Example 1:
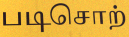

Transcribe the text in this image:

படிசொற்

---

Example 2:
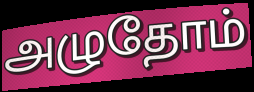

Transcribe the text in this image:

அழுதோம்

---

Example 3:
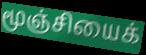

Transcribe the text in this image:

மூஞ்சியைக்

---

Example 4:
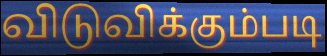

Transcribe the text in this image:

விடுவிக்கும்படி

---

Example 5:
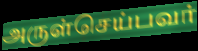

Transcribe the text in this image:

அருள்செய்பவர்